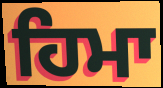
ਹਿਮਾ